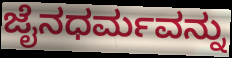
ಜೈನಧರ್ಮವನ್ನು